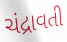
ચંદ્રાવતી